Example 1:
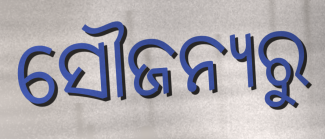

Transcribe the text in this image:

ସୌଜନ୍ୟରୁ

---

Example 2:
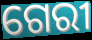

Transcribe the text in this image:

ଗେରୀ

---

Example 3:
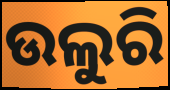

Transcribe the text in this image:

ଉଲୁରି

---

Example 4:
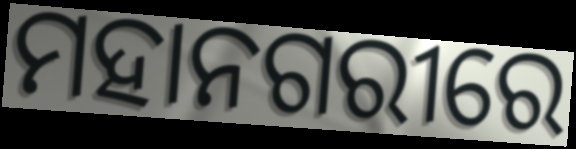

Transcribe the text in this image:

ମହାନଗରୀରେ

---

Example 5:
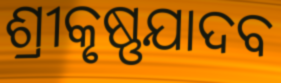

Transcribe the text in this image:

ଶ୍ରୀକୃଷ୍ଣଯାଦବ